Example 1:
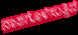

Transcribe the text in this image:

ನಾಶಗೊಳಿಸುತ್ತಿದೆ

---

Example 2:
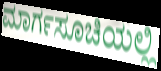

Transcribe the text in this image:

ಮಾರ್ಗಸೂಚಿಯಲ್ಲಿ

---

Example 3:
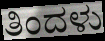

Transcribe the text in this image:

ತಿಂದಳು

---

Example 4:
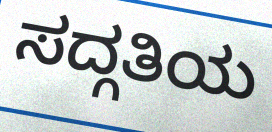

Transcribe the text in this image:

ಸದ್ಗತಿಯ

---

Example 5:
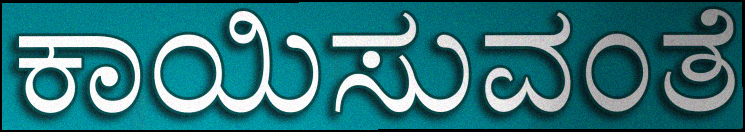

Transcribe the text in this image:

ಕಾಯಿಸುವಂತೆ